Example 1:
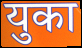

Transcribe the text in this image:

युका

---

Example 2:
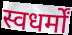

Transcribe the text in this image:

स्वधर्मों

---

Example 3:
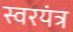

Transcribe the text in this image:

स्वरयंत्र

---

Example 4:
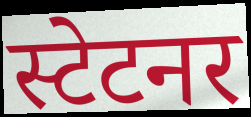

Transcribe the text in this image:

स्टेटनर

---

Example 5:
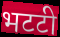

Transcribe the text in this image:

भटटी